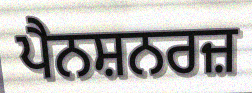
ਪੈਨਸ਼ਨਰਜ਼